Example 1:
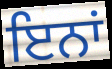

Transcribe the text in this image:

ਇਨਾਂ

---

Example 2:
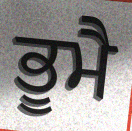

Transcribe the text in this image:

ਭੂਮੈ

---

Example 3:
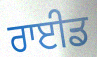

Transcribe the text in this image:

ਰਾਈਡ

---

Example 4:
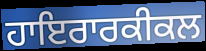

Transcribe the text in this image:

ਹਾਇਰਾਰਕੀਕਲ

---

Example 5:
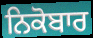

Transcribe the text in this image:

ਨਿਕੋਬਾਰ